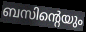
ബസിന്റെയും